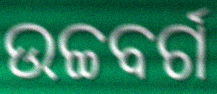
ଉଚ୍ଚବର୍ଗ